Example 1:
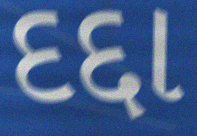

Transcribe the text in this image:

દદ્દા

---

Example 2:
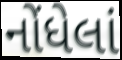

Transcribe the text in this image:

નોંધેલાં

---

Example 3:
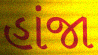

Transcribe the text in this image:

હાંજા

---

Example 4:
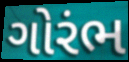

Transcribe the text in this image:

ગોરંભ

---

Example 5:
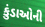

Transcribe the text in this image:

કુંડાઓની